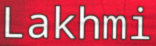
Lakhmi